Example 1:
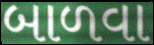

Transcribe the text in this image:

બાળવા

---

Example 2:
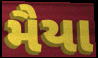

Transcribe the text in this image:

મૈયા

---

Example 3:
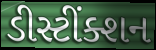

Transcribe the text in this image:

ડીસ્ટીંક્શન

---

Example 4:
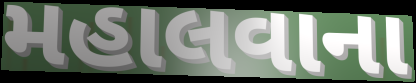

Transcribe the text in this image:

મહાલવાના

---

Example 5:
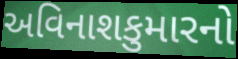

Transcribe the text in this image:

અવિનાશકુમારનો